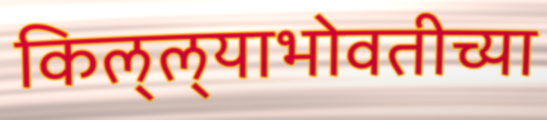
किल्ल्याभोवतीच्या